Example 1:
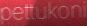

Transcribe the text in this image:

pettukoni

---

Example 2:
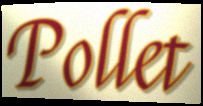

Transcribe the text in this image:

Pollet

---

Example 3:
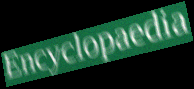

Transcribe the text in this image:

Encyclopaedia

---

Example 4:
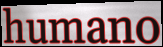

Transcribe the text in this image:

humano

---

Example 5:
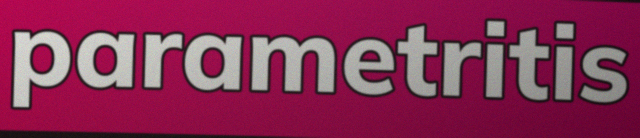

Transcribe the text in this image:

parametritis